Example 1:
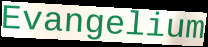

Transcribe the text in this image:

Evangelium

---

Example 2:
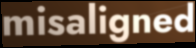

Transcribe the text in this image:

misaligned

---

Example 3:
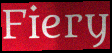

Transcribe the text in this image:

Fiery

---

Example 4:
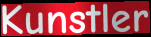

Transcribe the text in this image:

Kunstler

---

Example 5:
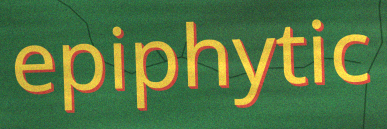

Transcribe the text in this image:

epiphytic